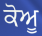
ਕੋਅੂ